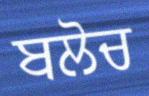
ਬਲੋਚ